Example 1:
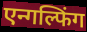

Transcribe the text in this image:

एन्गल्फिंग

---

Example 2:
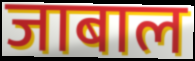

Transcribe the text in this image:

जाबाल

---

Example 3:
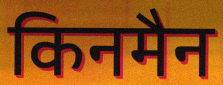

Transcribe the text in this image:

किनमैन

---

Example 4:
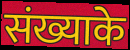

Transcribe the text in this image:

संख्याके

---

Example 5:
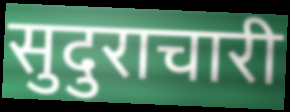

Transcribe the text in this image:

सुदुराचारी